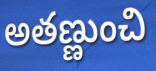
అతణ్ణుంచి